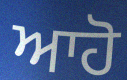
ਆਹੋ